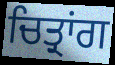
ਚਿਤ੍ਰਾਂਗ